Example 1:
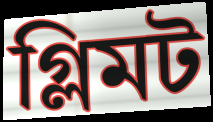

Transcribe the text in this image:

গ্লিমট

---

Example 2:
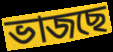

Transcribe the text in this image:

ভাজছে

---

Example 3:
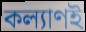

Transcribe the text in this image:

কল্যাণই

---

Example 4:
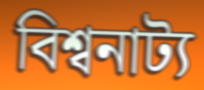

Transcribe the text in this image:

বিশ্বনাট্য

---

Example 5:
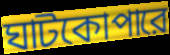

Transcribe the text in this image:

ঘাটকোপারে